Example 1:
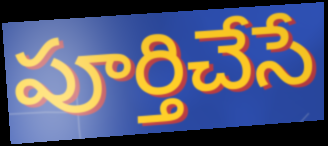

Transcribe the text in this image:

పూర్తిచేసే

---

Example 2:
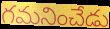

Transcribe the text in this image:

గమనించేడు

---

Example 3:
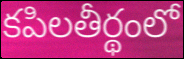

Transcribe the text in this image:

కపిలతీర్థంలో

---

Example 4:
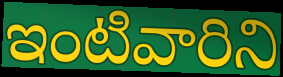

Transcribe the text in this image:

ఇంటివారిని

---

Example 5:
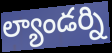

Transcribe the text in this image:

ల్యాండర్ని